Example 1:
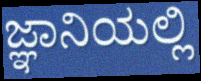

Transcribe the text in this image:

ಜ್ಞಾನಿಯಲ್ಲಿ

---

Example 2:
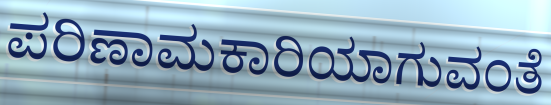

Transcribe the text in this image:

ಪರಿಣಾಮಕಾರಿಯಾಗುವಂತೆ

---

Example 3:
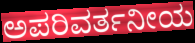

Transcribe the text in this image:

ಅಪರಿವರ್ತನೀಯ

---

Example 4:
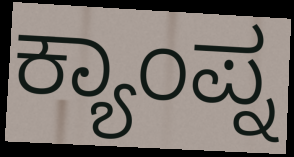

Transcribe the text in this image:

ಕ್ಯಾಂಪ್ನ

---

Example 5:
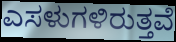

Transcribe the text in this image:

ಎಸಳುಗಳಿರುತ್ತವೆ